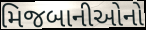
મિજબાનીઓનો